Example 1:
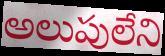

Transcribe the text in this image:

అలుపులేని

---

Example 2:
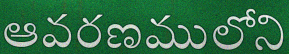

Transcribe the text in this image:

ఆవరణములోని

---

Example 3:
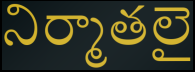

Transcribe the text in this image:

నిర్మాతలై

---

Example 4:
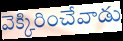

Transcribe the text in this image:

వెక్కిరించేవాడు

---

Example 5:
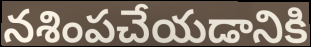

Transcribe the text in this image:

నశింపచేయడానికి